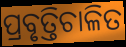
ପ୍ରବୃତ୍ତିଚାଳିତ